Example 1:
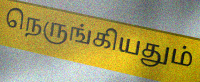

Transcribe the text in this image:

நெருங்கியதும்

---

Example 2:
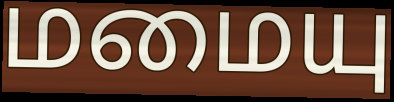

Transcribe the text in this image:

மமையு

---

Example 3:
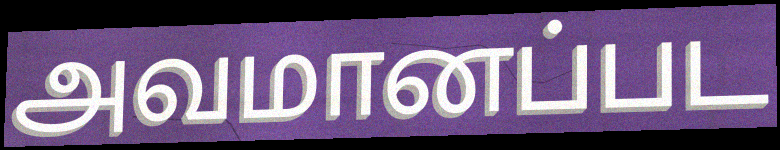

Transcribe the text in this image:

அவமானப்பட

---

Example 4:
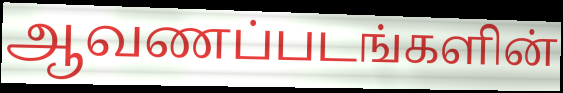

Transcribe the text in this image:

ஆவணப்படங்களின்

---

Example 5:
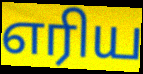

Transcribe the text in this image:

எரிய